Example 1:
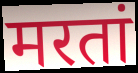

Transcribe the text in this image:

मरतां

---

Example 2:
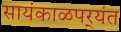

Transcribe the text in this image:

सायंकाळपर्यंत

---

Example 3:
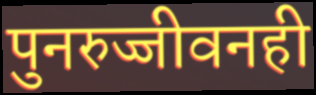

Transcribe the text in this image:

पुनरुज्जीवनही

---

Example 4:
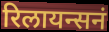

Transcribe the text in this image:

रिलायन्सनं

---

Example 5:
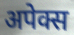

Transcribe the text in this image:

अपेक्स